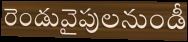
రెండువైపులనుండీ